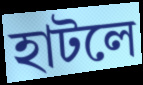
হাটলে